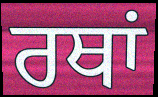
ਰਥਾਂ